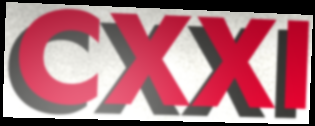
CXXI